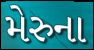
મેરુના